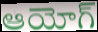
ఆయోగ్